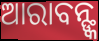
ଆରାବନ୍ଙ୍କ